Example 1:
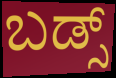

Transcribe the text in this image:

ಬಡ್ಸ್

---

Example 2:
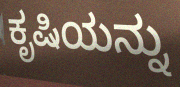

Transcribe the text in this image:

ಕೃಷಿಯನ್ನು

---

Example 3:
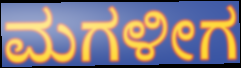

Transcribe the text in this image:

ಮಗಳೀಗ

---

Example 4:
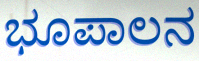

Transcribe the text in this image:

ಭೂಪಾಲನ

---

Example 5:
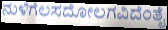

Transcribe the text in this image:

ನುಳಿಗೆಲಸದೋಲಗವಿದೆಂತೈ